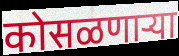
कोसळणाऱ्या